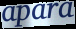
apara